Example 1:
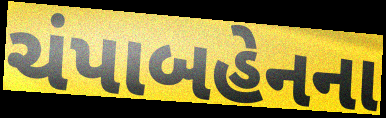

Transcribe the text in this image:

ચંપાબહેનના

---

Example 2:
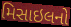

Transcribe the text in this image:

મિસાઇલનો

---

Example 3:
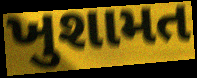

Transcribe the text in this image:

ખુશામત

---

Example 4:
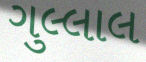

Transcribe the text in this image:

ગુલ્લાલ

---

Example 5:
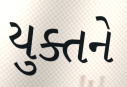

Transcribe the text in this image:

યુક્તને